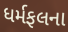
ધર્મફલના